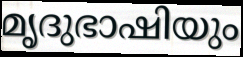
മൃദുഭാഷിയും